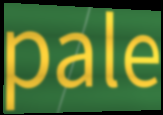
pale